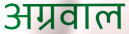
अग्रवाल